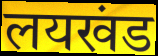
लयखंड